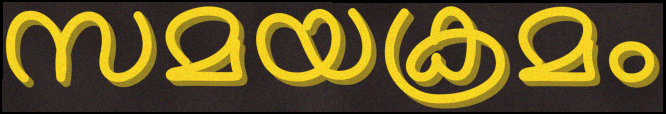
സമയക്രമം